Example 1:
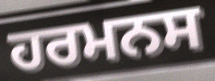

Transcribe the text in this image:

ਹਰਮਨਸ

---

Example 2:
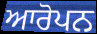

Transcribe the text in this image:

ਆਰੋਪਨ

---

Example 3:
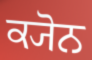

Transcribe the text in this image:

ਕ੍ਯੋਨ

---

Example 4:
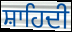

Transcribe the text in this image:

ਸ਼ਾਹਿਦੀ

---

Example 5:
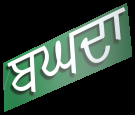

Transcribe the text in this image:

ਬਘਦਾ